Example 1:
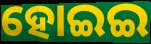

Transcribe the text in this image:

ହୋଇଇ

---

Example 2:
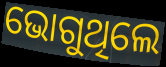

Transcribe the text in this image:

ଭୋଗୁଥିଲେ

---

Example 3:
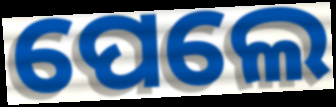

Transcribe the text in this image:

ପେଲେ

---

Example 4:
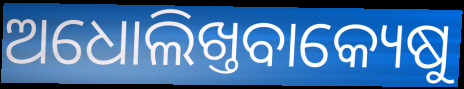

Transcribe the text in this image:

ଅଧୋଲିଖ୍ତବାକ୍ୟେଷୁ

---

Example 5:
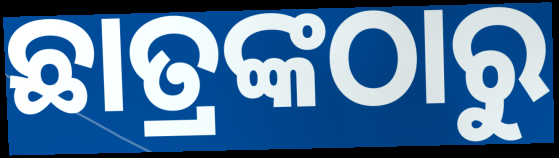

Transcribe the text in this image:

ଛାତ୍ରଙ୍କଠାରୁ